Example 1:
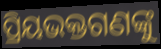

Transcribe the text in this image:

ପ୍ରିୟଭକ୍ତଗଣଙ୍କୁ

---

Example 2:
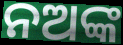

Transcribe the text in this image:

ନଅଙ୍କ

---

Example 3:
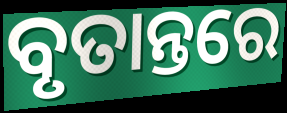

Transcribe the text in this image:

ବୃତାନ୍ତରେ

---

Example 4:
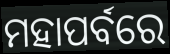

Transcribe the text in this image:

ମହାପର୍ବରେ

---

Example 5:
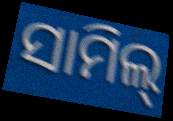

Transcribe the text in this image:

ସାମିଲ୍